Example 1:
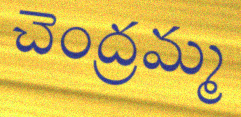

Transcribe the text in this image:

చెంద్రమ్మ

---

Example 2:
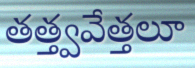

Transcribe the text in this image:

తత్త్వవేత్తలూ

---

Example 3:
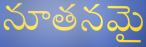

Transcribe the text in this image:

నూతనమై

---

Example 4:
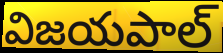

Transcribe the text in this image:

విజయపాల్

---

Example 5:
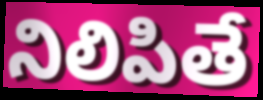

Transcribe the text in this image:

నిలిపితే